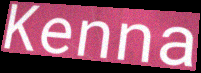
Kenna